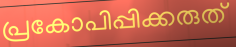
പ്രകോപിപ്പിക്കരുത്